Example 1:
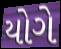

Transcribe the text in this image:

યોગે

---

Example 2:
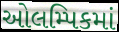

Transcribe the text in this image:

ઓલમ્પિકમાં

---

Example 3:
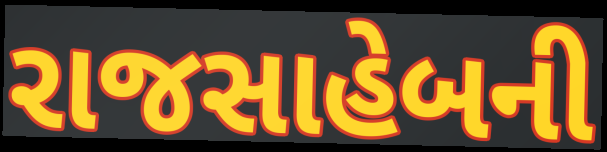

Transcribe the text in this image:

રાજસાહેબની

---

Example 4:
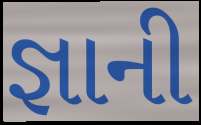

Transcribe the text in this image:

જ્ઞાની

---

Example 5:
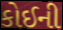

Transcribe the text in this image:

કોઈની